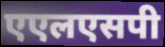
एएलएसपी